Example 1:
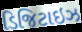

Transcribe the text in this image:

ડિજિટાઇઝ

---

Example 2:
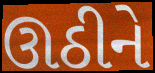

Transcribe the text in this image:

ઊઠીને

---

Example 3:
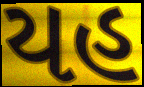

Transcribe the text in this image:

યહ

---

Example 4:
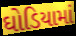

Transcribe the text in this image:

ઘોડિયામાં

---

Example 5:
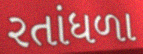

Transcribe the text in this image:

રતાંધળા